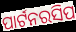
ପାର୍ଟନରସିପ